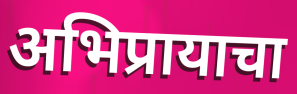
अभिप्रायाचा